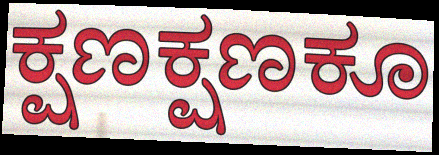
ಕ್ಷಣಕ್ಷಣಕೂ